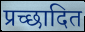
प्रच्छादित